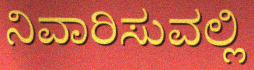
ನಿವಾರಿಸುವಲ್ಲಿ